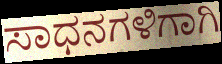
ಸಾಧನಗಳಿಗಾಗಿ